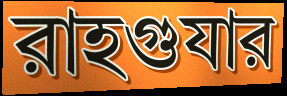
রাহগুযার